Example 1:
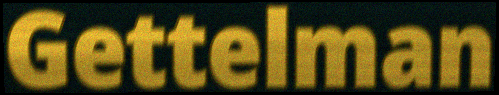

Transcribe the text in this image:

Gettelman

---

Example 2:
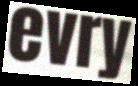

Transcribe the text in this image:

evry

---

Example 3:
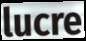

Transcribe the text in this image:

lucre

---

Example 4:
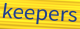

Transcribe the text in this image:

keepers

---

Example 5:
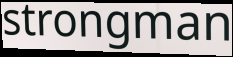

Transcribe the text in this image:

strongman